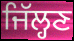
ਜਿੱਲ੍ਹਣ